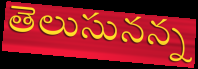
తెలుసునన్న